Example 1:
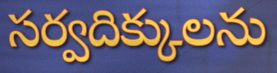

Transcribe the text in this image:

సర్వదిక్కులను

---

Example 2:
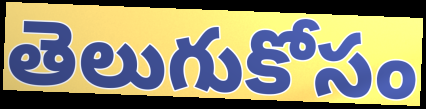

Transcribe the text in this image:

తెలుగుకోసం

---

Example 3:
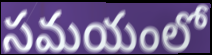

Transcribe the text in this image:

సమయంలో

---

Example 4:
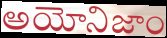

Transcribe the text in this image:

అయోనిజాం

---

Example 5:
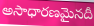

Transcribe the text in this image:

అసాధారణమైనదీ